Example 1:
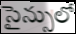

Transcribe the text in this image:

సైన్సులో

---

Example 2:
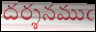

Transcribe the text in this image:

దర్శనముఁ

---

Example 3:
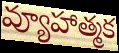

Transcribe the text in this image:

వ్యూహాత్మక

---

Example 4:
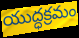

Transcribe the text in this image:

యుద్ధక్రమం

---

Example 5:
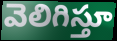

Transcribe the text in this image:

వెలిగిస్తూ